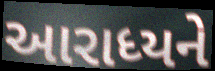
આરાધ્યને